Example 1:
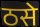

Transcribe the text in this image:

ठसे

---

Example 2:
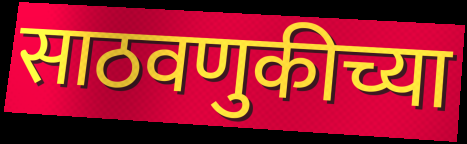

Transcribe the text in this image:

साठवणुकीच्या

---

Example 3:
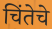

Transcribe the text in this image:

चिंतेचे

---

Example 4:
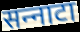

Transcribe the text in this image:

सन्नाटा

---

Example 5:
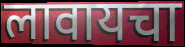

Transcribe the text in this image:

लावायचा